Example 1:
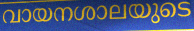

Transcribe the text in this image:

വായനശാലയുടെ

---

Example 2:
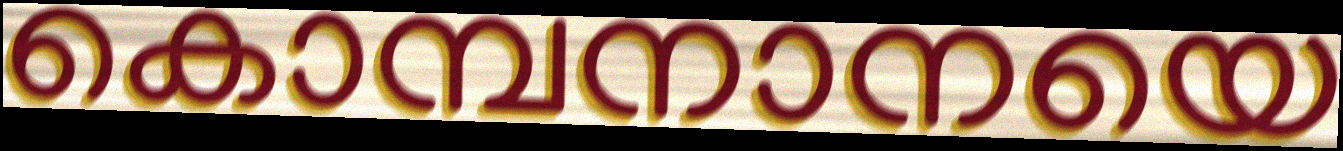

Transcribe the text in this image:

കൊമ്പനാനയെ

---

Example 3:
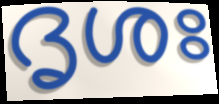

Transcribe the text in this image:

ദൃശഃ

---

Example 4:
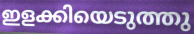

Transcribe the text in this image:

ഇളക്കിയെടുത്തു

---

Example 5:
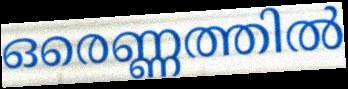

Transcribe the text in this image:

ഒരെണ്ണത്തിൽ